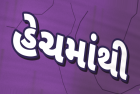
હેચમાંથી